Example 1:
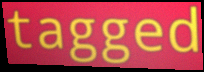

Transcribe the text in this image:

tagged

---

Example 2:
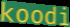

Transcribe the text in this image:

koodi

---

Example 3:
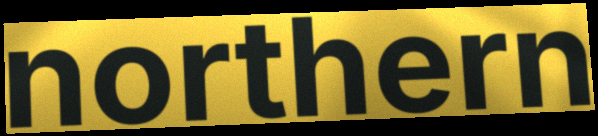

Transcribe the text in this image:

northern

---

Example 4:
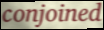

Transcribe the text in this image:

conjoined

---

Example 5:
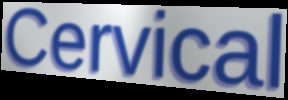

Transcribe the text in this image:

Cervical